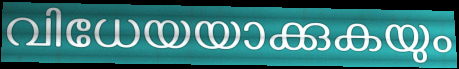
വിധേയയാക്കുകയും